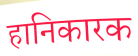
हानिकारक